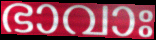
ഭാവാഃ